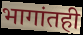
भागांतही